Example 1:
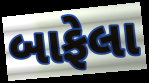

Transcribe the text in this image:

બાફેલા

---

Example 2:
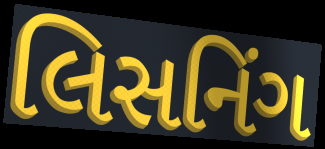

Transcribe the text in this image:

લિસનિંગ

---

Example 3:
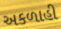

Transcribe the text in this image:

અકળાહી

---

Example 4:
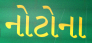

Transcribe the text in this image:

નોટોના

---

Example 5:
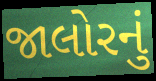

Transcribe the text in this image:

જાલોરનું